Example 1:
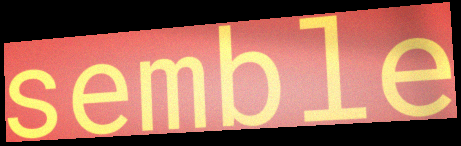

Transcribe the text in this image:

semble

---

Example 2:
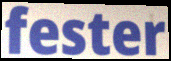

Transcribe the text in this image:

fester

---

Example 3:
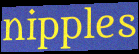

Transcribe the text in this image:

nipples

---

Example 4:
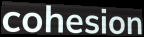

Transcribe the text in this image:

cohesion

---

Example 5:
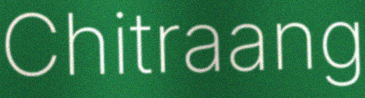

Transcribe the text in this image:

Chitraang